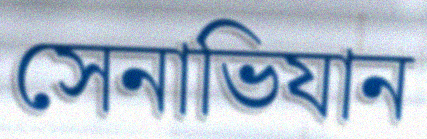
সেনাভিযান